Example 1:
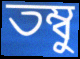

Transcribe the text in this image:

তম্বু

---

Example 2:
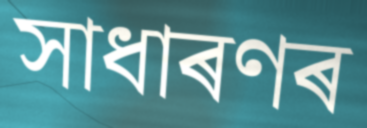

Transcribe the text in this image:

সাধাৰণৰ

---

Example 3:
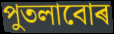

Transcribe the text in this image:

পুতলাবোৰ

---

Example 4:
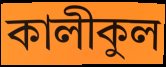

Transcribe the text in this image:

কালীকুল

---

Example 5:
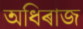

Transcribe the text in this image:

অধিৰাজ